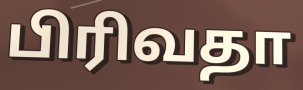
பிரிவதா